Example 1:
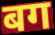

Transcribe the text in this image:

बग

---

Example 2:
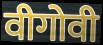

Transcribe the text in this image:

वीगोवी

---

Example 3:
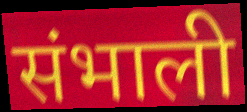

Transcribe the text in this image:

संभाली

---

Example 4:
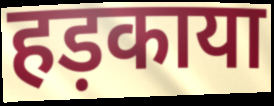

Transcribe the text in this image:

हड़काया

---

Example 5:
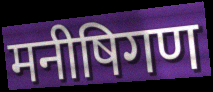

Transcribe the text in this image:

मनीषिगण